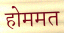
होममत